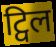
ट्विल